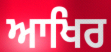
ਆਖਿਰ